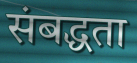
संबद्धता